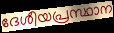
ദേശീയപ്രസ്ഥാന